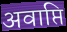
अवाप्ति